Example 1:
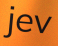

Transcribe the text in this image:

jev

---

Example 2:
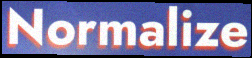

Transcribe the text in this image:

Normalize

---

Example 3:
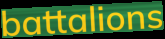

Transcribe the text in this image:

battalions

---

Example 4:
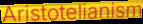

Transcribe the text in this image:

Aristotelianism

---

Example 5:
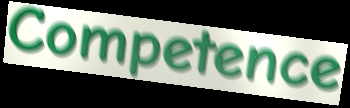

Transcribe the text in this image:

Competence